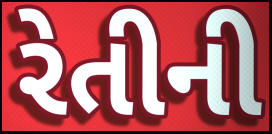
રેતીની